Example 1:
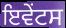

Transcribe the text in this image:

ਇਵੇੰਟਸ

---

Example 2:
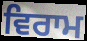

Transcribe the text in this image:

ਵਿਰਾਮ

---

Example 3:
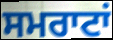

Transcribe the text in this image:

ਸਮਰਾਟਾਂ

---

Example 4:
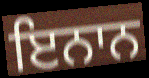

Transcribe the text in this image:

ਇਨਾਨ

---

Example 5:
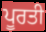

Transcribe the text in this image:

ਪੂਰਤੀ